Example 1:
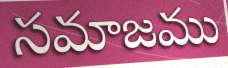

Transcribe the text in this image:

సమాజము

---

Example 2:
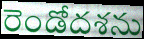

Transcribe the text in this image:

రెండోదశను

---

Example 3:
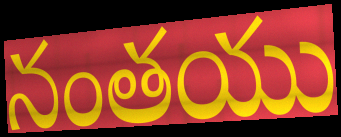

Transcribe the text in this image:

నంతయు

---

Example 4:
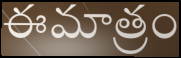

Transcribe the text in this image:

ఈమాత్రం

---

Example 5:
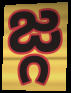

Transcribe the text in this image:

జ్గ